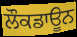
ਲੌਕਡਾਊਨ